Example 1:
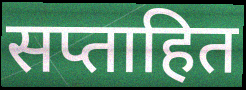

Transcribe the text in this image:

सप्ताहित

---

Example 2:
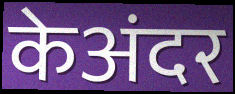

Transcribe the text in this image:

केअंदर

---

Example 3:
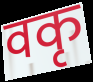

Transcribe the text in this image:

वकृ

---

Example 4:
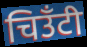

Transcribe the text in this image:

चिउँटी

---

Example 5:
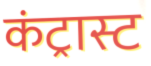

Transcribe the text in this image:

कंट्रास्ट